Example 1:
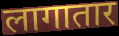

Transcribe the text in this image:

लागातार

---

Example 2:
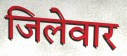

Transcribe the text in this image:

जिलेवार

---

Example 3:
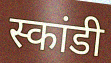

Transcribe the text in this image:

स्कांडी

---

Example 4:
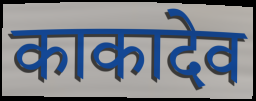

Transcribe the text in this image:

काकादेव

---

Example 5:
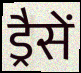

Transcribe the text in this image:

ड्रैसें